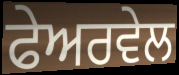
ਫੇਅਰਵੇਲ